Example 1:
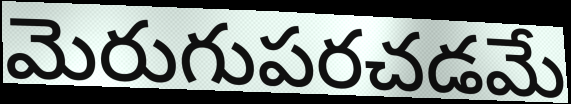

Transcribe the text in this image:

మెరుగుపరచడమే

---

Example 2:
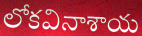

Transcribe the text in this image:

లోకవినాశాయ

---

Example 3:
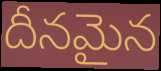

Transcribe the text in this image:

దీనమైన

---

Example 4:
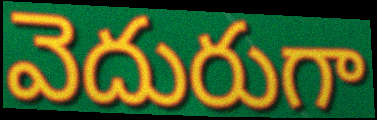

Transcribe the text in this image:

వెదురుగా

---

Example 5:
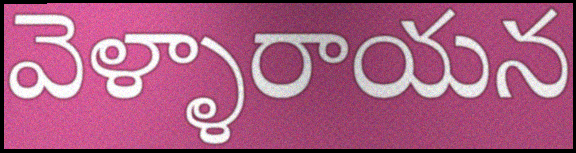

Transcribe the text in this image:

వెళ్ళారాయన